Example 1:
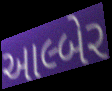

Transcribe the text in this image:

આલ્બેર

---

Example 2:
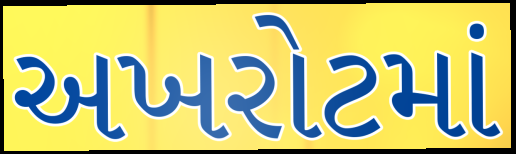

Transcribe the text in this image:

અખરોટમાં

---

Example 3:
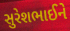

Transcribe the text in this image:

સુરેશભાઈને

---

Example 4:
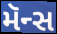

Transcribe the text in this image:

મૅન્સ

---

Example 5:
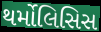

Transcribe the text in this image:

થર્મોલિસિસ